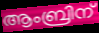
ആംബ്രിന്